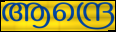
ആന്ദ്രെ